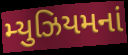
મ્યુઝિયમનાં